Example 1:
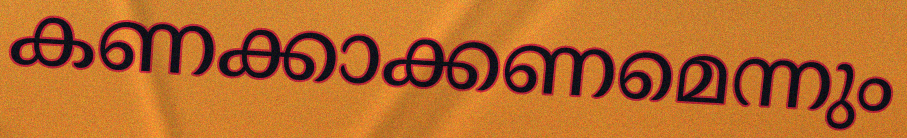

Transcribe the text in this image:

കണക്കാക്കണമെന്നും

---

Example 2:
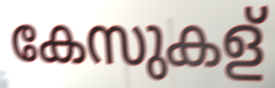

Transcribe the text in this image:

കേസുകള്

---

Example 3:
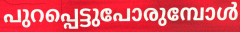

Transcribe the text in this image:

പുറപ്പെട്ടുപോരുമ്പോൾ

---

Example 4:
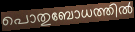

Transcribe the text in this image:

പൊതുബോധത്തിൽ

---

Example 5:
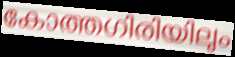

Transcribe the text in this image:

കോത്തഗിരിയിലും